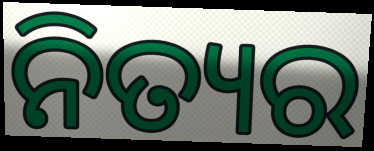
ନିତ୍ୟର